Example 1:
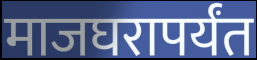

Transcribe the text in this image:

माजघरापर्यंत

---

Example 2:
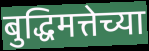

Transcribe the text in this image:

बुद्धिमत्तेच्या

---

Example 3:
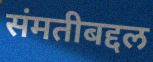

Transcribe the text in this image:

संमतीबद्दल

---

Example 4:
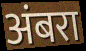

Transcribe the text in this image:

अंबरा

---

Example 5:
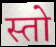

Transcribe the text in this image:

स्तो